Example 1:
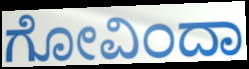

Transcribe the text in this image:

ಗೋವಿಂದಾ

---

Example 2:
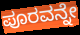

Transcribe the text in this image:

ಪೂರವನ್ನೇ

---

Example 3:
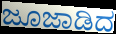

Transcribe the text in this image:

ಜೂಜಾಡಿದ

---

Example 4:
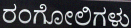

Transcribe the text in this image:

ರಂಗೋಲಿಗಳು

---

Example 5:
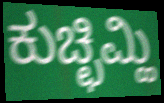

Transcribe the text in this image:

ಕುಚ್ಛಿಮ್ಹಿ